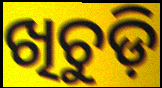
ଖିଚୁଡ଼ି